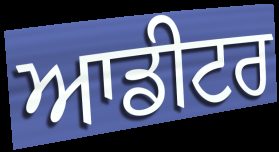
ਆਡੀਟਰ